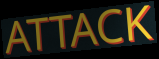
ATTACK